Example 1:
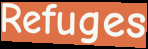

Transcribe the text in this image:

Refuges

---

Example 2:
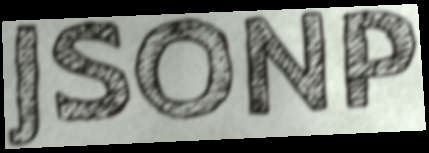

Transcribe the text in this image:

JSONP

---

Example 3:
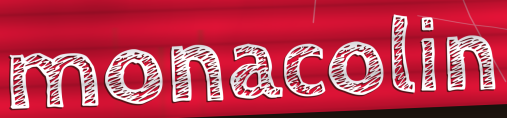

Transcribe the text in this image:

monacolin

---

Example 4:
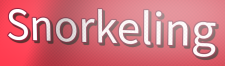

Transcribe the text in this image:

Snorkeling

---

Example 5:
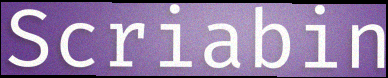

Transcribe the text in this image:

Scriabin